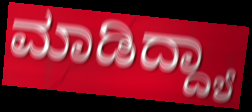
ಮಾಡಿದ್ದ್ಯಾ